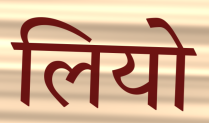
लियो